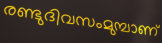
രണ്ടുദിവസംമുമ്പാണ്